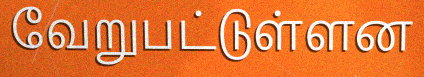
வேறுபட்டுள்ளன